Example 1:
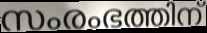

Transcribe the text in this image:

സംരംഭത്തിന്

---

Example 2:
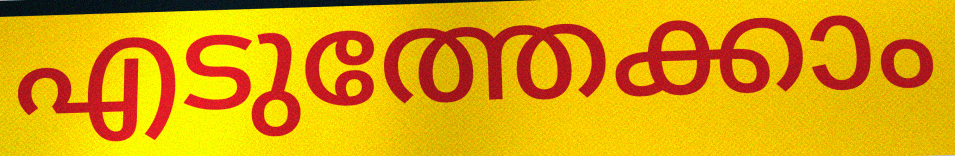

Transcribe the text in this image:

എടുത്തേക്കാം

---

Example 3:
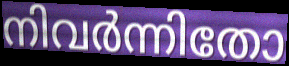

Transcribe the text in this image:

നിവർന്നിതോ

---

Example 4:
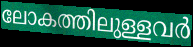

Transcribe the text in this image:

ലോകത്തിലുള്ളവർ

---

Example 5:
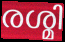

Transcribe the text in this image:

രശ്മി